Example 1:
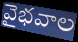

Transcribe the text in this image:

వైభవాల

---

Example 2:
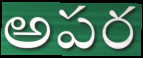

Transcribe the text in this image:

అపర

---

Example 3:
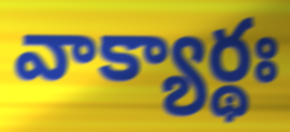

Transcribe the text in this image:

వాక్యార్థః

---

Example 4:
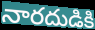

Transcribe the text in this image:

నారదుడికి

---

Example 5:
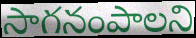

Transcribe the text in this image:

సాగనంపాలని